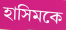
হাসিমকে